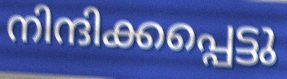
നിന്ദിക്കപ്പെട്ടു